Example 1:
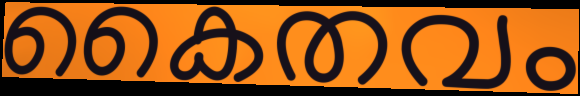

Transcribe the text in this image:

കൈതവം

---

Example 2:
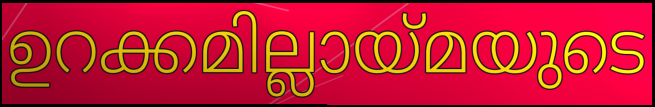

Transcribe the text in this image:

ഉറക്കമില്ലായ്മയുടെ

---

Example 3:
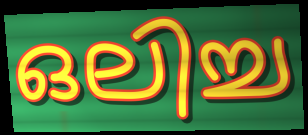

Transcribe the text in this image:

ഒലിച്ച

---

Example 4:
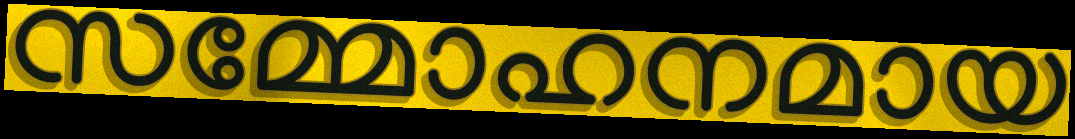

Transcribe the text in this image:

സമ്മോഹനമായ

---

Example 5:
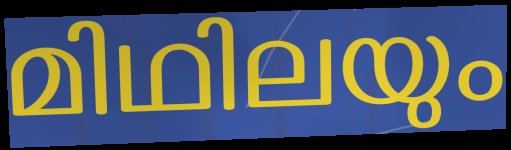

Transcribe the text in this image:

മിഥിലയും